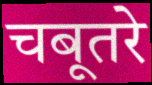
चबूतरे